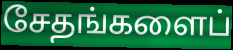
சேதங்களைப்